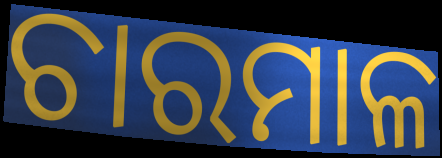
ଚାରମାଳ